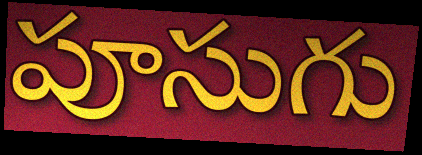
పూసుగు